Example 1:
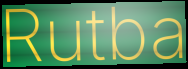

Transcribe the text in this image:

Rutba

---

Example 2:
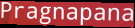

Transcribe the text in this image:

Pragnapana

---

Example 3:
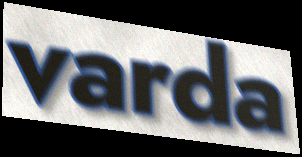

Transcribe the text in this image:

varda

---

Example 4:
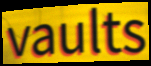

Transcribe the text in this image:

vaults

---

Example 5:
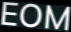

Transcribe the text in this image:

EOM